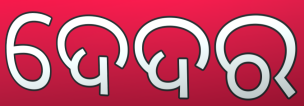
ଦେଦର